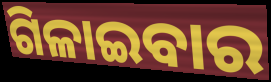
ଗିଳାଇବାର